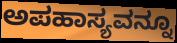
ಅಪಹಾಸ್ಯವನ್ನೂ